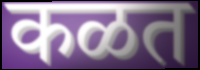
कळत